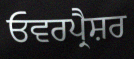
ਓਵਰਪ੍ਰੈਸ਼ਰ